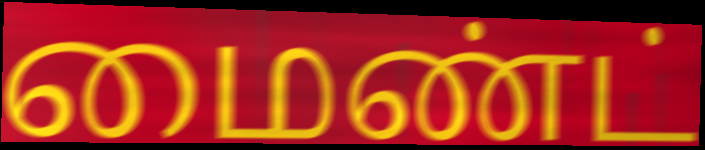
மைண்ட்